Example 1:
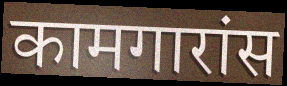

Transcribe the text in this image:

कामगारांस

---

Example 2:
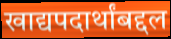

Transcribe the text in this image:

खाद्यपदार्थांबद्दल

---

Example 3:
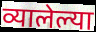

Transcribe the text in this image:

व्यालेल्या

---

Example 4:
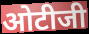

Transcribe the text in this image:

ओटीजी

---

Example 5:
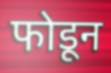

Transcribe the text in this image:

फोडून